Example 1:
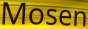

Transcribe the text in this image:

Mosen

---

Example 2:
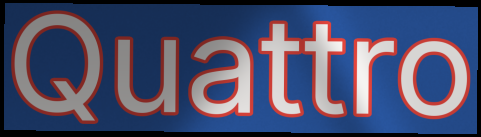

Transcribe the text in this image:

Quattro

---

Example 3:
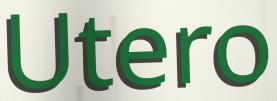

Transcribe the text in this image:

Utero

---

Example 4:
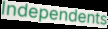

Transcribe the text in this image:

Independents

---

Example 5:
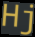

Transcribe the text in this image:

Hj